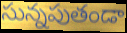
సున్నపుతండా